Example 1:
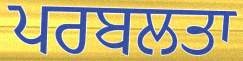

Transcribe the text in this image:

ਪਰਬਲਤਾ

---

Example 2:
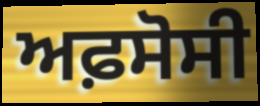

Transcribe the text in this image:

ਅਫ਼ਸੋਸੀ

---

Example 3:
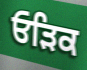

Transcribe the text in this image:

ਓੜਿਕ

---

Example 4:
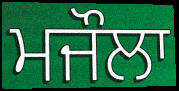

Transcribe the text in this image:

ਮਜੌਲਾ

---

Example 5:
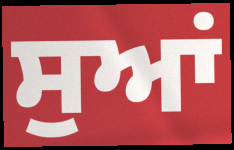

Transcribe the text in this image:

ਸੁਆਂ